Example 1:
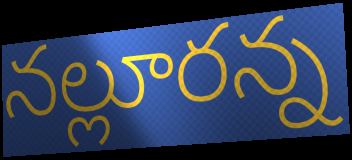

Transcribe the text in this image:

నల్లూరన్న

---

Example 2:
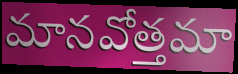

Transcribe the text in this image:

మానవోత్తమా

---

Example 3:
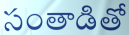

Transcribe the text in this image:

సంతాడితో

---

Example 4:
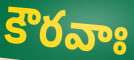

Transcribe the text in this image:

కౌరవాః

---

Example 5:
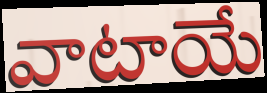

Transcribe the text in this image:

వాటాయే